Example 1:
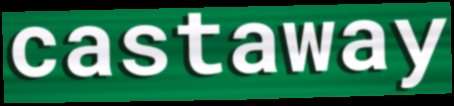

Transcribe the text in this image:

castaway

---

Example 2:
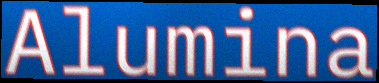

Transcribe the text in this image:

Alumina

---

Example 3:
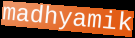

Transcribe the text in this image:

madhyamik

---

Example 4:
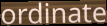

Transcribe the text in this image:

ordinate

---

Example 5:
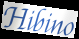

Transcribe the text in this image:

Hibino